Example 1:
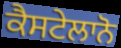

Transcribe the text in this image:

ਕੈਸਟੇਲਾਨੋ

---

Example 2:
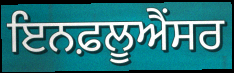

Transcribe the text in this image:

ਇਨਫ਼ਲੂਐਂਸਰ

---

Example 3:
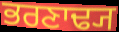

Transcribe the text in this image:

ਭਰਣਾਢ੍ਯ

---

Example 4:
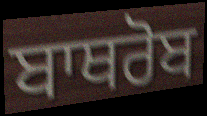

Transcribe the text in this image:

ਬਾਥਰੋਬ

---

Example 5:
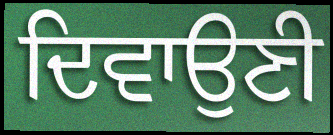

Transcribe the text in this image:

ਦਿਵਾਉਣੀ